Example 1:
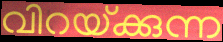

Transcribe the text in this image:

വിറയ്‌ക്കുന്ന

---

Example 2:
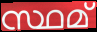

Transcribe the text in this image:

സ്ഥമ്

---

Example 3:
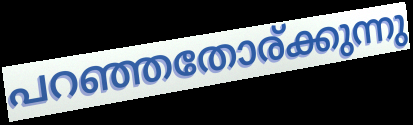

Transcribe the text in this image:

പറഞ്ഞതോര്ക്കുന്നു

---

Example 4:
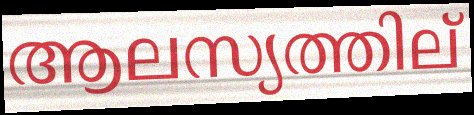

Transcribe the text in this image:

ആലസ്യത്തില്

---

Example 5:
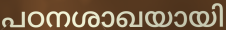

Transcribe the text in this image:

പഠനശാഖയായി